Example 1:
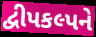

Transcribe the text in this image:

દ્વીપકલ્પને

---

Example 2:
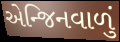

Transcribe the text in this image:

એન્જિનવાળું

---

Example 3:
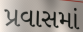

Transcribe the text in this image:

પ્રવાસમાં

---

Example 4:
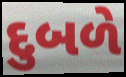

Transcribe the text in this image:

દુબળે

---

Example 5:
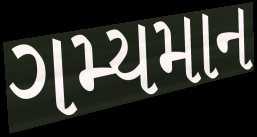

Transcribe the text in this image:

ગમ્યમાન